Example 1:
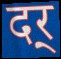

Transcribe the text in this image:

दर्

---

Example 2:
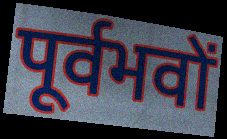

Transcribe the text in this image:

पूर्वभवों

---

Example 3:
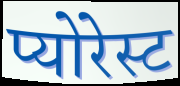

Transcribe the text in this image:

प्योरेस्ट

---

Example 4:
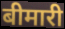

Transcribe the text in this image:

बीमारी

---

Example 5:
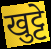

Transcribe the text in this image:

खुट्टे